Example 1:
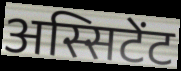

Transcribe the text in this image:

अस्सिटेंट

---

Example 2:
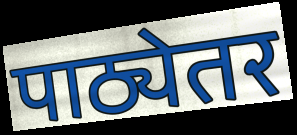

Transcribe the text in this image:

पाठ्येतर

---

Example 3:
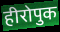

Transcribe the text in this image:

हीरोपुक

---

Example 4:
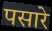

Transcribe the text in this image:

पसारे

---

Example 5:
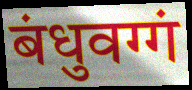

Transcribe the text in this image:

बंधुवग्गं